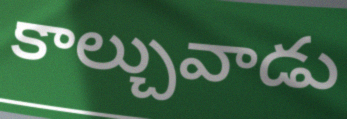
కాల్చువాడు